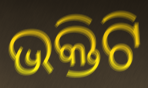
ଭକ୍ତିଟି